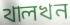
থালখন